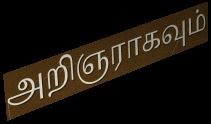
அறிஞராகவும்